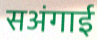
सअंगाई